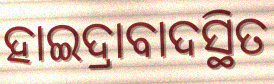
ହାଇଦ୍ରାବାଦସ୍ଥିତ